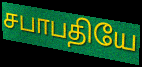
சபாபதியே